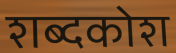
शब्दकोश